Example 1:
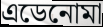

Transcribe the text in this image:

এডেনোমা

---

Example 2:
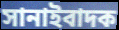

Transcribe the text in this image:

সানাইবাদক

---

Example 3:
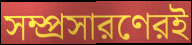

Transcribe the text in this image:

সম্প্রসারণেরই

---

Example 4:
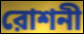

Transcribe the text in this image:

রোশনী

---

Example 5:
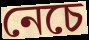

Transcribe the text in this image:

নেচে